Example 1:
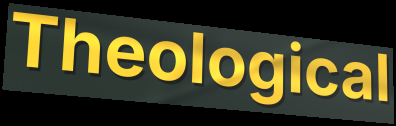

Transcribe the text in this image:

Theological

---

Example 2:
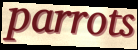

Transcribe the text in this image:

parrots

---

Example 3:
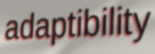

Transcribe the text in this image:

adaptibility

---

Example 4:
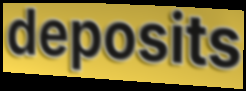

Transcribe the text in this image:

deposits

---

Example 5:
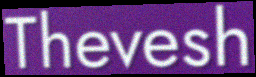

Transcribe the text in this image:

Thevesh